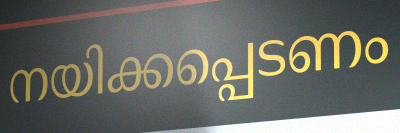
നയിക്കപ്പെടണം